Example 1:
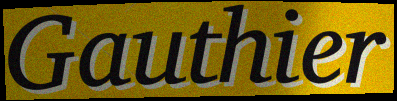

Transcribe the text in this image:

Gauthier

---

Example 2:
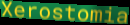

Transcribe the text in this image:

Xerostomia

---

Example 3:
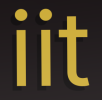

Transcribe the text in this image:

iit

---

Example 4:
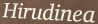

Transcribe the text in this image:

Hirudinea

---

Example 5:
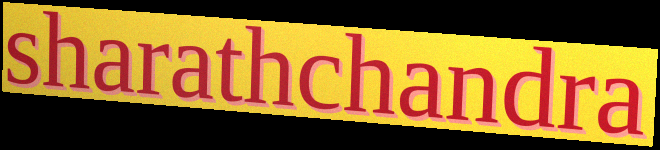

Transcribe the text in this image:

sharathchandra